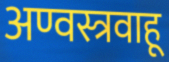
अण्वस्त्रवाहू